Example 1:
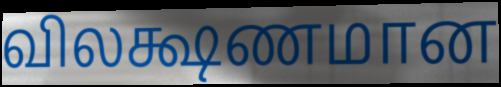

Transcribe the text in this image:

விலக்ஷணமான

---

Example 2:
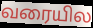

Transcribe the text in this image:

வரையில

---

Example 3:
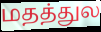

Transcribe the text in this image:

மதத்துல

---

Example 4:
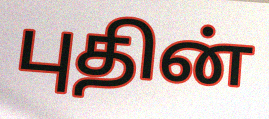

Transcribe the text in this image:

புதின்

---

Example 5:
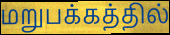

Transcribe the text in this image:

மறுபக்கத்தில்